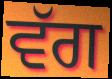
ਵੱਗ